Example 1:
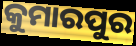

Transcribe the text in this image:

କୁମାରପୁର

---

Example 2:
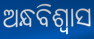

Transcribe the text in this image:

ଅନ୍ଧବିଶ୍ଵାସ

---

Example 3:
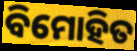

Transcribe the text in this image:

ବିମୋହିତ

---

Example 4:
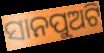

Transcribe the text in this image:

ସାନପୁଅଟି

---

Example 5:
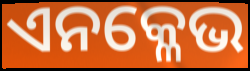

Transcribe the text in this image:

ଏନକ୍ଳେଭ